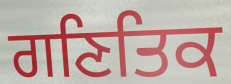
ਗਣਿਤਿਕ